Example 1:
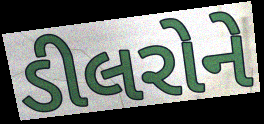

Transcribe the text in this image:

ડીલરોને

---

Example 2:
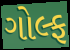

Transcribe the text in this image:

ગોલ્ફ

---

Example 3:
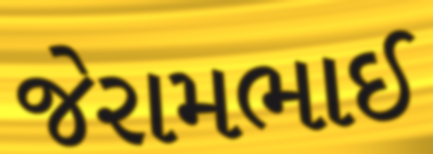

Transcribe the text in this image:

જેરામભાઈ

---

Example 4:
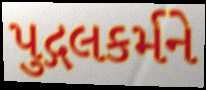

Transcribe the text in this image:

પુદ્ગલકર્મને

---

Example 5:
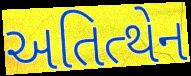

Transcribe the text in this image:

અતિત્થેન